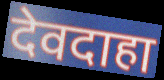
देवदाहा